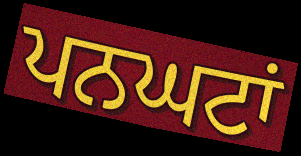
ਪਨਘਟਾਂ